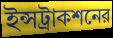
ইন্সট্রাকশনের